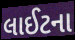
લાઈટના